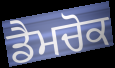
ਡੈਮਚੋਕ